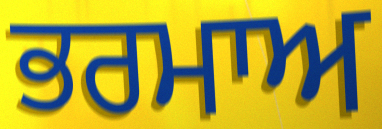
ਭਰਮਾਅ